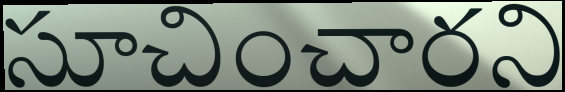
సూచించారని